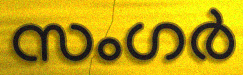
സംഗർ